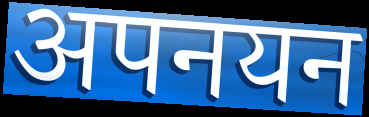
अपनयन